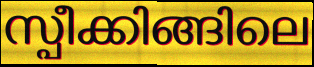
സ്പീക്കിങ്ങിലെ